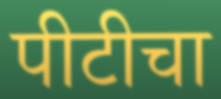
पीटीचा